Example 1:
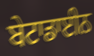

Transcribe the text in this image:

ਬੇਟਾਡਾਈਨ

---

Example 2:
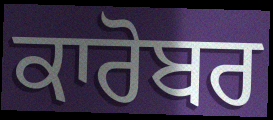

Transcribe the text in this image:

ਕਾਰੋਬਰ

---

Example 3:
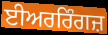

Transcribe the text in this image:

ਈਅਰਰਿੰਗਜ਼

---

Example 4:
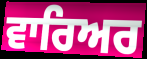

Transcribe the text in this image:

ਵਾਰਿਅਰ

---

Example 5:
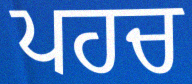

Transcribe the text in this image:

ਪਹਚ